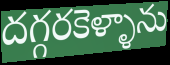
దగ్గరకెళ్ళాను